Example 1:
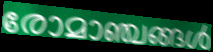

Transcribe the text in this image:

രോമാഞ്ചങ്ങൾ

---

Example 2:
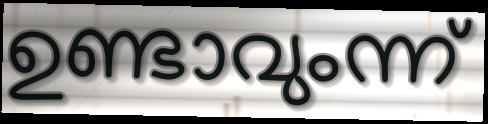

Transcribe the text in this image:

ഉണ്ടാവുംന്ന്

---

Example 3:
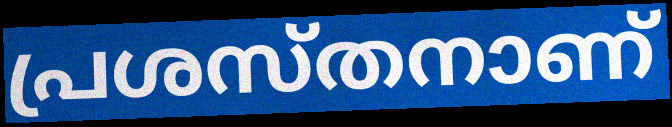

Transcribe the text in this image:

പ്രശസ്തനാണ്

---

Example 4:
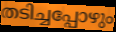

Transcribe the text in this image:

തടിച്ചപ്പോഴും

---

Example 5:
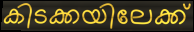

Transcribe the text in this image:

കിടക്കയിലേക്ക്